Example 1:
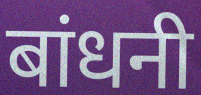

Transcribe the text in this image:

बांधनी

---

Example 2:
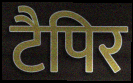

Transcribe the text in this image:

टैपिर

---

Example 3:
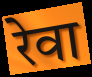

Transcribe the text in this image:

रेवा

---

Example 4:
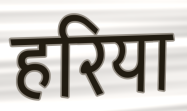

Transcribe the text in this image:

हरिया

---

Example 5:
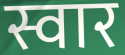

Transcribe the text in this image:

स्वार